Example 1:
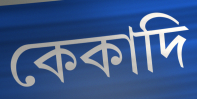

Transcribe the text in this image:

কেকাদি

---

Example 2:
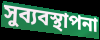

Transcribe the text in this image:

সুব্যবস্থাপনা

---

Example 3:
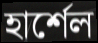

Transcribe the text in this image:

হার্শেল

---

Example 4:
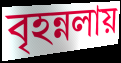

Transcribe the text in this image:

বৃহন্নলায়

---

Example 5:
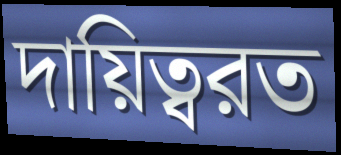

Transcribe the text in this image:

দায়িত্বরত